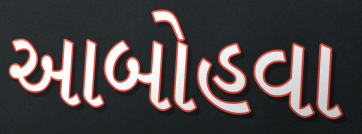
આબોહવા